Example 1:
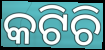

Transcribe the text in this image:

କଟିଚି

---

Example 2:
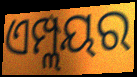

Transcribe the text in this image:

ଏମ୍ପ୍ଲୟର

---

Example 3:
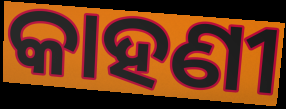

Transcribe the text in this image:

କାହଣୀ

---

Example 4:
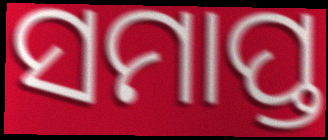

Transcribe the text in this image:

ସମାପ୍ତ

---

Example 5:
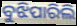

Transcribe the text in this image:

ବୁଝିପାରିଲି